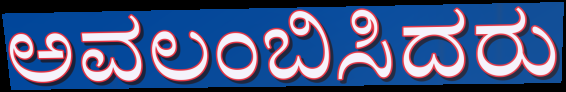
ಅವಲಂಬಿಸಿದರು